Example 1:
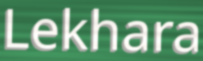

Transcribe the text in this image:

Lekhara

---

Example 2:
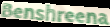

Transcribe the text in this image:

Benshreena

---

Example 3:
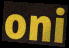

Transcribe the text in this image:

oni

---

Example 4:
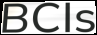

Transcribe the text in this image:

BCIs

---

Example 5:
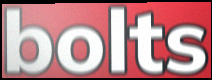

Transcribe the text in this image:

bolts